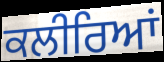
ਕਲੀਰਿਆਂ